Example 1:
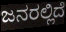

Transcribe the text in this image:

ಜನರಲ್ಲಿದೆ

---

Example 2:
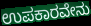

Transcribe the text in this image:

ಉಪಕಾರವೇನು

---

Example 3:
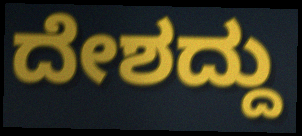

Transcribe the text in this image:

ದೇಶದ್ದು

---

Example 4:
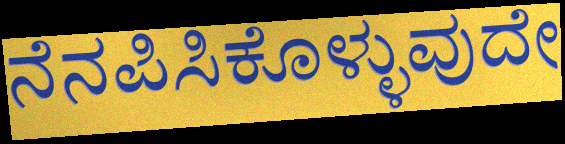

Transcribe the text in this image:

ನೆನಪಿಸಿಕೊಳ್ಳುವುದೇ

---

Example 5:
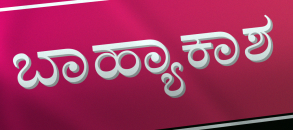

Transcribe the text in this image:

ಬಾಹ್ಯಾಕಾಶ